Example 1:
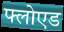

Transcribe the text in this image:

फ्लोएड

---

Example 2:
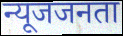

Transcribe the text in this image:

न्यूजजनता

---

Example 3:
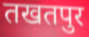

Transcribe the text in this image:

तखतपुर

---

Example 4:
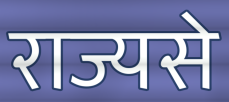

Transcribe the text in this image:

राज्यसे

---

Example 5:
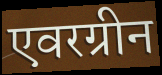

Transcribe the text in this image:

एवरग्रीन